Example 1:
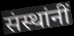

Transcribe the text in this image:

संस्थांनीं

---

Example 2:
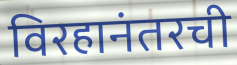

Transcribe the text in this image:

विरहानंतरची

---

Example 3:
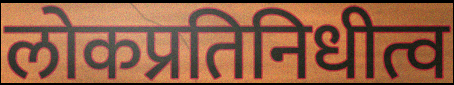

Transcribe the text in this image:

लोकप्रतिनिधीत्व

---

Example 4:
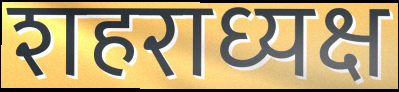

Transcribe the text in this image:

शहराध्यक्ष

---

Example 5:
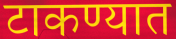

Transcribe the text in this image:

टाकण्यात